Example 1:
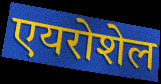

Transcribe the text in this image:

एयरोशेल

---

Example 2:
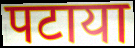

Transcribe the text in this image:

पटाया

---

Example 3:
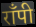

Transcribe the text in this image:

राँपी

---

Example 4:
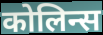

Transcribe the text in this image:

कोलिन्स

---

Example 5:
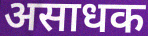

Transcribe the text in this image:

असाधक